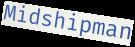
Midshipman